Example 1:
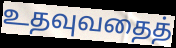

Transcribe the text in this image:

உதவுவதைத்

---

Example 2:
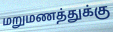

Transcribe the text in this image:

மறுமணத்துக்கு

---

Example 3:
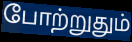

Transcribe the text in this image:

போற்றுதும்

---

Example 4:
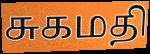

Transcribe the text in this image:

சுகமதி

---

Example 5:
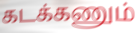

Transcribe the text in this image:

கடக்கணும்